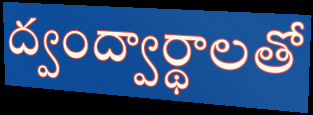
ద్వంద్వార్థాలతో